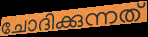
ചോദിക്കുന്നത്